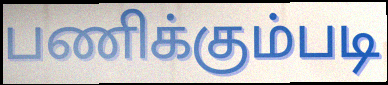
பணிக்கும்படி